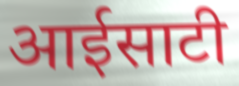
आईसाटी